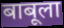
बाबूला